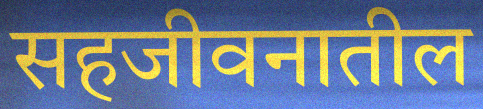
सहजीवनातील